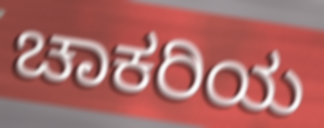
ಚಾಕರಿಯ